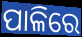
ପାଳିରେ